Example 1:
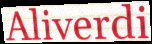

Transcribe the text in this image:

Aliverdi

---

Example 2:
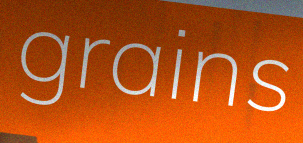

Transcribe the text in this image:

grains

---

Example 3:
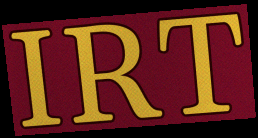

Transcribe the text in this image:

IRT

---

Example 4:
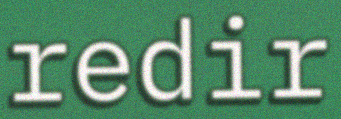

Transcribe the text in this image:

redir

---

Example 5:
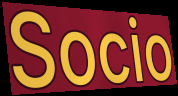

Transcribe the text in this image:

Socio